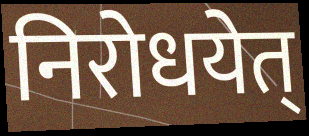
निरोधयेत्